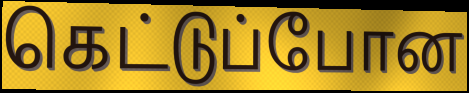
கெட்டுப்போன